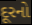
દૂરનો